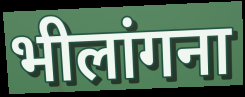
भीलांगना